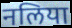
नलिया